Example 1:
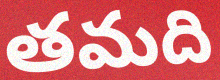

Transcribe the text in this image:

తమది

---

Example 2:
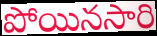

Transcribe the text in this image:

పోయినసారి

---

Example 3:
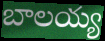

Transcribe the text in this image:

బాలయ్య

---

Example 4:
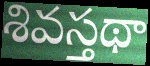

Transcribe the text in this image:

శివస్తథా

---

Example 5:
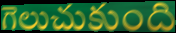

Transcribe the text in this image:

గెలుచుకుంది